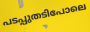
പടപ്പുതടിപോലെ